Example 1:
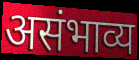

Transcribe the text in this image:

असंभाव्य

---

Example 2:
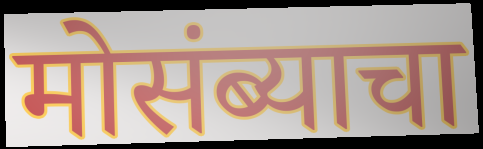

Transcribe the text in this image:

मोसंब्याचा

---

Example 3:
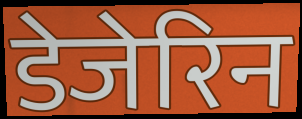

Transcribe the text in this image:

डेजेरिन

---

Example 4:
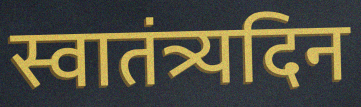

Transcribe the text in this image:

स्वातंत्र्यदिन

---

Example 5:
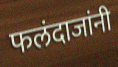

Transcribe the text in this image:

फलंदाजांनी